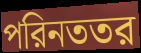
পরিনততর